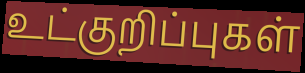
உட்குறிப்புகள்